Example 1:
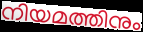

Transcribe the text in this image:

നിയമത്തിനും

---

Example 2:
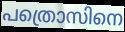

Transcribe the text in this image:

പത്രൊസിനെ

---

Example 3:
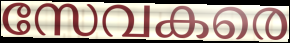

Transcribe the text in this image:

സേവകരെ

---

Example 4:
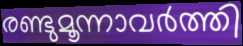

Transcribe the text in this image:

രണ്ടുമൂന്നാവർത്തി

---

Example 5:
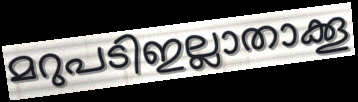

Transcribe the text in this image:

മറുപടിഇല്ലാതാക്കൂ